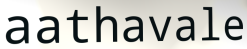
aathavale